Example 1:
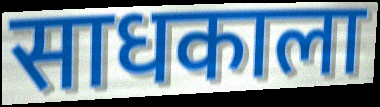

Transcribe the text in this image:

साधकाला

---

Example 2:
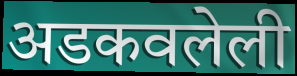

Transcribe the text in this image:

अडकवलेली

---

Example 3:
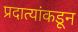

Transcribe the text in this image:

प्रदात्यांकडून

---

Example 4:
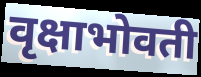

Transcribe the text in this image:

वृक्षाभोवती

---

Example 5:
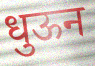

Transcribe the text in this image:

धुऊन